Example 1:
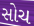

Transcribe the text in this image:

સોચ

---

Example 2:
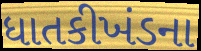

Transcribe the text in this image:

ધાતકીખંડના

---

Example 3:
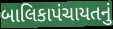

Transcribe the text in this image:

બાલિકાપંચાયતનું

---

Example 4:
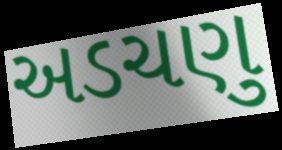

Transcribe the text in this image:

અડચણુ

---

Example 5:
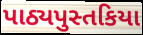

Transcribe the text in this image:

પાઠ્યપુસ્તકિયા